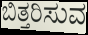
ಬಿತ್ತರಿಸುವ